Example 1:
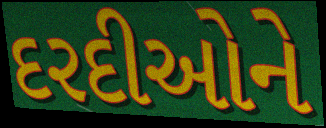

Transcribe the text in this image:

દરદીઓને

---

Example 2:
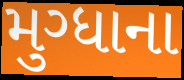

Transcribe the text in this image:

મુગ્ધાના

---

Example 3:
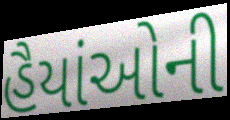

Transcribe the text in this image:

હૈયાંઓની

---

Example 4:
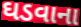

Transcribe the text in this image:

ઘડવાના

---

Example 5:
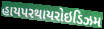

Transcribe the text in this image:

હાયપરથાયરોઇડિઝમ